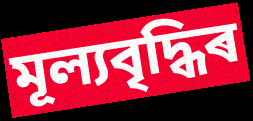
মূল্যবৃদ্ধিৰ